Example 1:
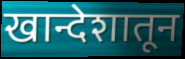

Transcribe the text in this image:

खान्देशातून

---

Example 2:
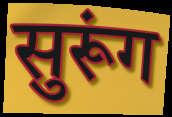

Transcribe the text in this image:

सुरूंग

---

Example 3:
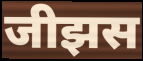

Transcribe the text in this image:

जीझस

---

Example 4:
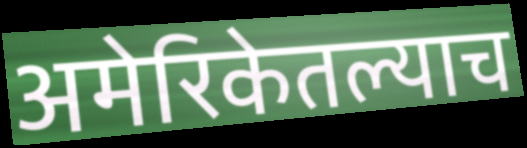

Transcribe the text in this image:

अमेरिकेतल्याच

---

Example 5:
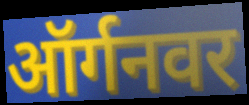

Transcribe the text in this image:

ऑर्गनवर